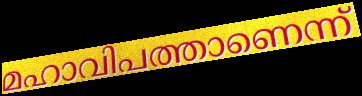
മഹാവിപത്താണെന്ന്